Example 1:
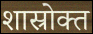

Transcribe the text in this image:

शास्रोक्त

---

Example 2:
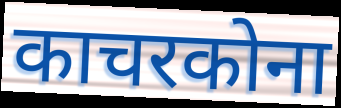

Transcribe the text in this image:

काचरकोना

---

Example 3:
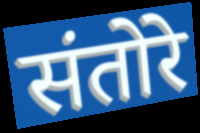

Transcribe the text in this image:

संतोरे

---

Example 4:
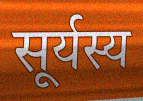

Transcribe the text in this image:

सूर्यस्य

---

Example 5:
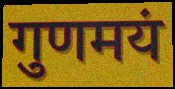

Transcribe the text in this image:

गुणमयं